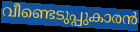
വീണ്ടെടുപ്പുകാരൻ